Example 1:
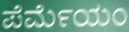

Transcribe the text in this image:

ಪೆರ್ಮೆಯಂ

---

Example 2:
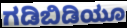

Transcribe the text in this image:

ಗಡಿಬಿಡಿಯೂ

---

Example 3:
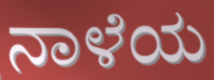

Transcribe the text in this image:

ನಾಳೆಯ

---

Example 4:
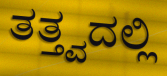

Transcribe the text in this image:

ತತ್ತ್ವದಲ್ಲಿ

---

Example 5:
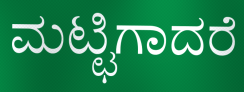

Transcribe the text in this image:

ಮಟ್ಟಿಗಾದರೆ